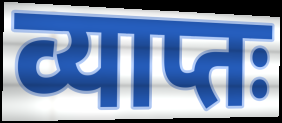
व्याप्तः